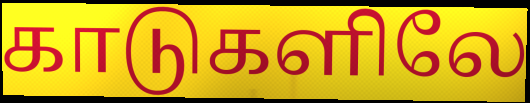
காடுகளிலே